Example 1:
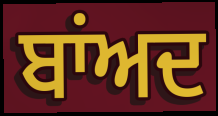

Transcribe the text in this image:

ਬਾਂਅਦ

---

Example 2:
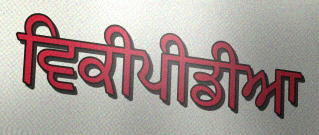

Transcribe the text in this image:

ਵਿਕੀਪੀਡੀਆ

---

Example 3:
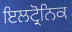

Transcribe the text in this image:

ਇਲਟ੍ਰੋਨਿਕ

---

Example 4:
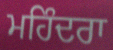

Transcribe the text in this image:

ਮਹਿੰਦਰਾ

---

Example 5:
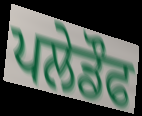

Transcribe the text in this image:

ਪਲੇਡੌਫ